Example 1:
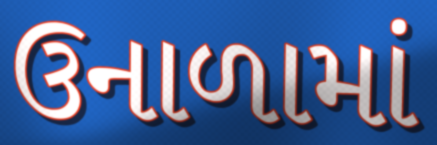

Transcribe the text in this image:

ઉનાળામાં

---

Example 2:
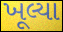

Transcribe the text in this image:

ખૂલ્યા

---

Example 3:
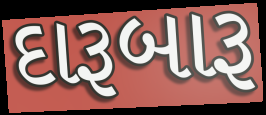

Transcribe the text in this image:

દારૂબારૂ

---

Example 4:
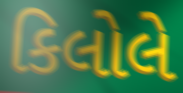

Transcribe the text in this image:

કિલોલે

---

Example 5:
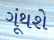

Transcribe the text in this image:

ગૂંથશે